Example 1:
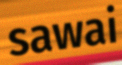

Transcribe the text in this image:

sawai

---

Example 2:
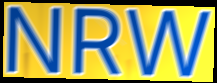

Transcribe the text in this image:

NRW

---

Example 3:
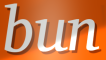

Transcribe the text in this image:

bun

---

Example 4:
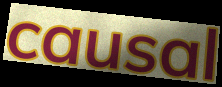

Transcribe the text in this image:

causal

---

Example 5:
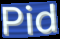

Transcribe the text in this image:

Pid